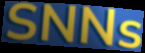
SNNs